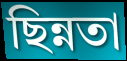
ছিন্নতা